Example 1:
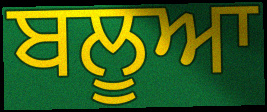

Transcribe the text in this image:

ਬਲੂਆ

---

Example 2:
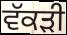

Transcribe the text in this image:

ਵੱਕੜੀ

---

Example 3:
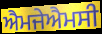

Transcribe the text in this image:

ਐਮਜੇਐਮਸੀ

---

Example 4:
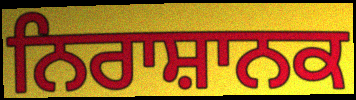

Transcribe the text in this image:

ਨਿਰਾਸ਼ਾਨਕ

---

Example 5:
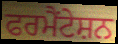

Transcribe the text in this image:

ਫਰਮੈਂਟੇਸ਼ਨ